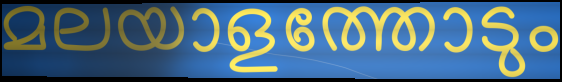
മലയാളത്തോടും